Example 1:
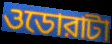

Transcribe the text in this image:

ওডোরাটা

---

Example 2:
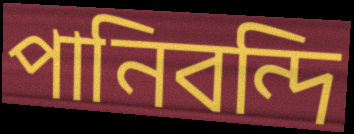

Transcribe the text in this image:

পানিবন্দি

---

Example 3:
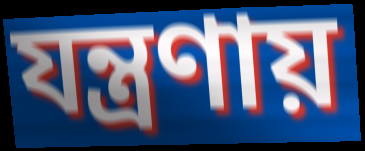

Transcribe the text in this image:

যন্ত্রণায়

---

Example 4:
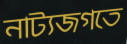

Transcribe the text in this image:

নাট্যজগতে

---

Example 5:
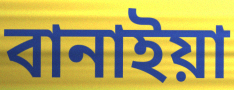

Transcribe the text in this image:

বানাইয়া